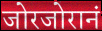
जोरजोरानं